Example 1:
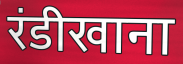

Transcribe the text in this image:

रंडीखाना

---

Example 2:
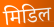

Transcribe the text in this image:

मिडिल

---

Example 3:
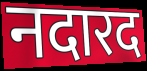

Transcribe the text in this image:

नदारद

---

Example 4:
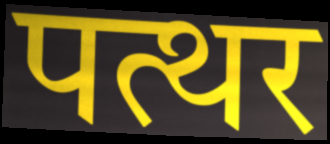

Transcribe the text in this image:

पत्थर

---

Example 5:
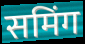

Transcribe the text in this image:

समिंग